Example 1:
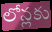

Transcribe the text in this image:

లోన్లకు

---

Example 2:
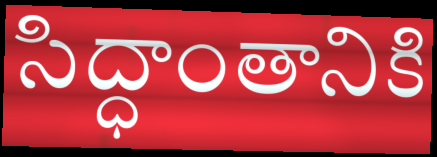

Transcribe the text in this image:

సిద్ధాంతానికి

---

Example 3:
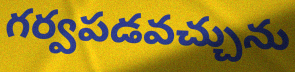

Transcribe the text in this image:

గర్వపడవచ్చును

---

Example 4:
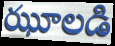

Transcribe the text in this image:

ఝూలడి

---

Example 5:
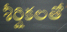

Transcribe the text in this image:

శీర్షికలతో